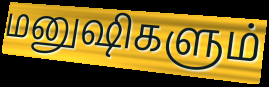
மனுஷிகளும்